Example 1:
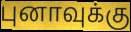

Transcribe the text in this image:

புனாவுக்கு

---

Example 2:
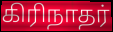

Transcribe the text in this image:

கிரிநாதர்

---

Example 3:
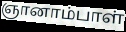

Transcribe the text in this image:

ஞானாம்பாள்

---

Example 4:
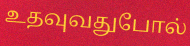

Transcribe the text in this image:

உதவுவதுபோல்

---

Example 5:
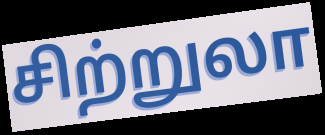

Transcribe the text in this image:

சிற்றுலா